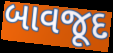
બાવજૂદ